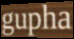
gupha